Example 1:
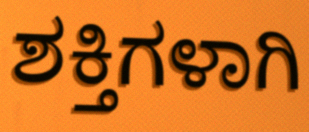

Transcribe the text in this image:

ಶಕ್ತಿಗಳಾಗಿ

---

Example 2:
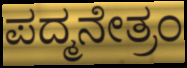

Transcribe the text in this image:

ಪದ್ಮನೇತ್ರಂ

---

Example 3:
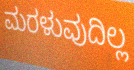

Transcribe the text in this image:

ಮರಳುವುದಿಲ್ಲ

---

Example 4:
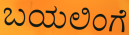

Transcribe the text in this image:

ಬಯಲಿಂಗೆ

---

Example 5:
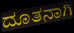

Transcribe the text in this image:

ದೂತನಾಗಿ